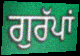
ਗੁਰੱਪਾਂ